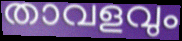
താവളവും